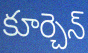
కూర్చెన్